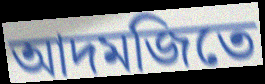
আদমজিতে